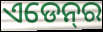
ଏଡେନ୍‍ର